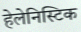
हेलेनिस्टिक